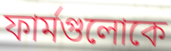
ফার্মগুলোকে